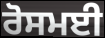
ਰੋਸਮਈ